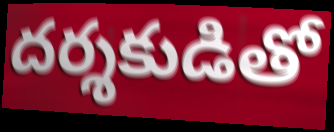
దర్శకుడితో